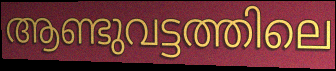
ആണ്ടുവട്ടത്തിലെ